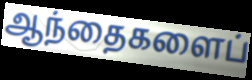
ஆந்தைகளைப்